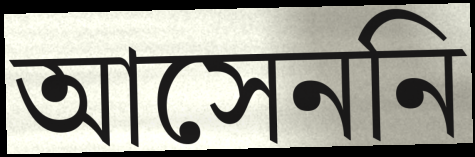
আসেননি